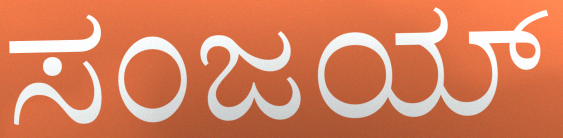
ಸಂಜಯ್